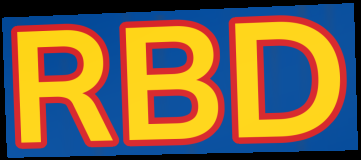
RBD